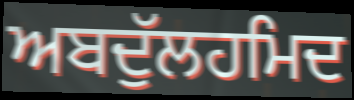
ਅਬਦੁੱਲਹਮਿਦ